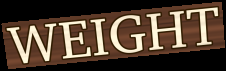
WEIGHT